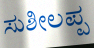
ಸುಶೀಲಪ್ಪ